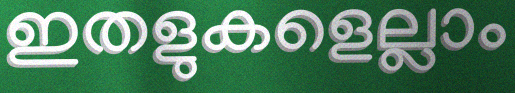
ഇതളുകളെല്ലാം